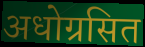
अधोग्रसित